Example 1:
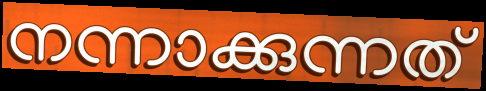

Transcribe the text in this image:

നന്നാക്കുന്നത്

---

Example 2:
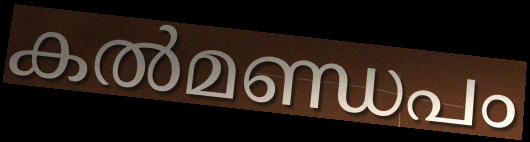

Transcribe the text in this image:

കൽമണ്ഡപം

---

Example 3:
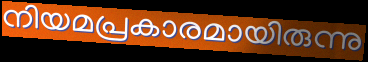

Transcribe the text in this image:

നിയമപ്രകാരമായിരുന്നു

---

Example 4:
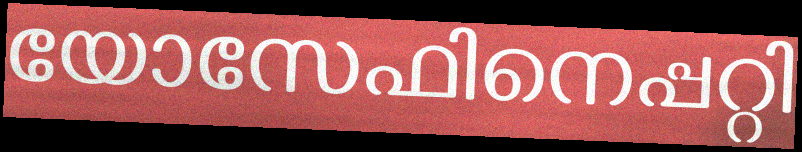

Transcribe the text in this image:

യോസേഫിനെപ്പറ്റി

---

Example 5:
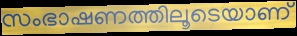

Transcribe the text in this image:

സംഭാഷണത്തിലൂടെയാണ്